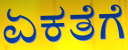
ಏಕತೆಗೆ